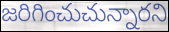
జరిగించుచున్నారని